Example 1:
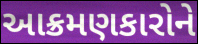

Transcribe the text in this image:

આક્રમણકારોને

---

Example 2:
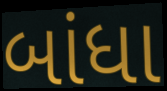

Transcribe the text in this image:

બાંધા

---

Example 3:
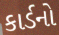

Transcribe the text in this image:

કાર્ડનો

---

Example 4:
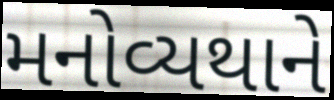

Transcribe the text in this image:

મનોવ્યથાને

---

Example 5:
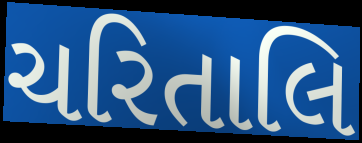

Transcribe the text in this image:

ચરિતાલિ